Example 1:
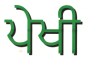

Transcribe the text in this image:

ਪੇਖੀ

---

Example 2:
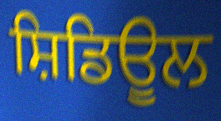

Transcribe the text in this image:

ਸ਼ਿਡਿਊਲ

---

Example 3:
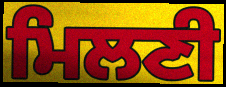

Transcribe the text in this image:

ਮਿਲਣੀ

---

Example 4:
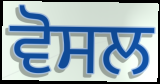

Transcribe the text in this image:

ਵੋਸਲ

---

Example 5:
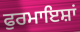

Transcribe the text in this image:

ਫੁਰਮਾਇਸ਼ਾਂ